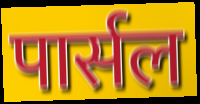
पार्सल